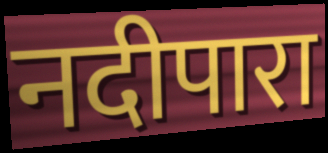
नदीपारा